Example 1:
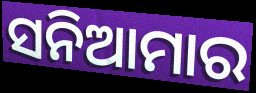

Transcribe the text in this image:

ସନିଆମାର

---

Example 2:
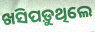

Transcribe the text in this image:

ଖସିପଡ଼ୁଥିଲେ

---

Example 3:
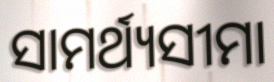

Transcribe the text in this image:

ସାମର୍ଥ୍ୟସୀମା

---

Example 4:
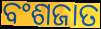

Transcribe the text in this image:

ବଂଶଜାତ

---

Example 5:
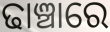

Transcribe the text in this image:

ଢାଞ୍ଚାରେ